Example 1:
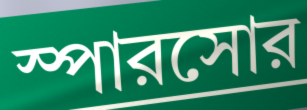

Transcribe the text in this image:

স্পারসোর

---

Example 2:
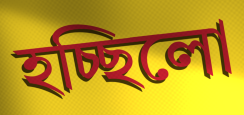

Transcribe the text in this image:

হচ্ছিলো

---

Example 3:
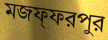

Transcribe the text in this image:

মজফ্ফরপুর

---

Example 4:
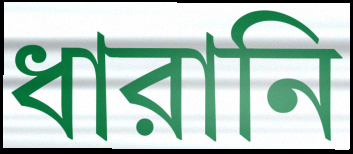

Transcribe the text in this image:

ধারানি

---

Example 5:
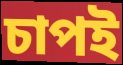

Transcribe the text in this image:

চাপই